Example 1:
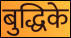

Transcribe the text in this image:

बुद्धिके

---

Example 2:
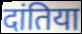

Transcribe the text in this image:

दांतिया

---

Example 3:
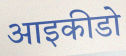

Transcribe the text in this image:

आइकीडो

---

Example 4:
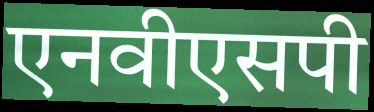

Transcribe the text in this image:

एनवीएसपी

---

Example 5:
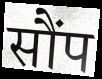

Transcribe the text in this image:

सौंप